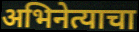
अभिनेत्याचा